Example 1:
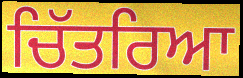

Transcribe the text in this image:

ਚਿੱਤਰਿਆ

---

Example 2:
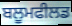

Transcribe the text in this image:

ਬਲੂਮਫੀਲਡ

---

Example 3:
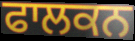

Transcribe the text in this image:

ਫਾਲਕਨ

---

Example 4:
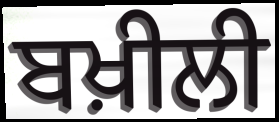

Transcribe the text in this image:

ਬਖ਼ੀਲੀ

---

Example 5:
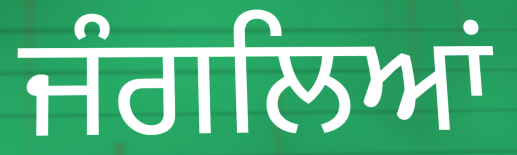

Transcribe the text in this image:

ਜੰਗਲਿਆਂ